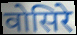
वोसिरे